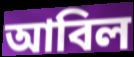
আবিল